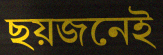
ছয়জনেই